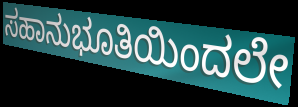
ಸಹಾನುಭೂತಿಯಿಂದಲೇ